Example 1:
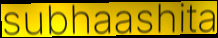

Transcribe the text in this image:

subhaashita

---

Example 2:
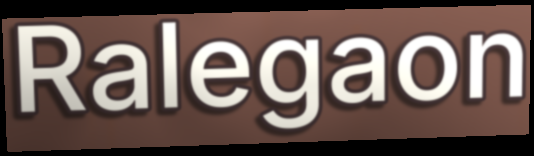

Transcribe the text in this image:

Ralegaon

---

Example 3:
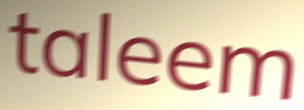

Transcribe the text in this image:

taleem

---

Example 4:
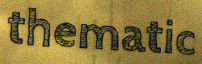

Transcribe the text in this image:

thematic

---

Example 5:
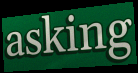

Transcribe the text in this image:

asking